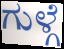
ಗುಳ್ಗೆ